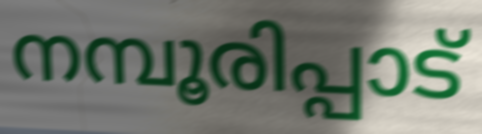
നമ്പൂരിപ്പാട്